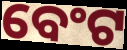
ବେଂଟ